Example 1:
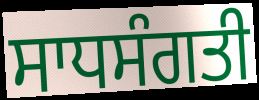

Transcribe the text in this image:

ਸਾਧਸੰਗਤੀ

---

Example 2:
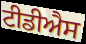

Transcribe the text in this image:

ਟੀਡੀਐਸ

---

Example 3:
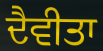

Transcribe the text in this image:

ਦੈਵੀਤਾ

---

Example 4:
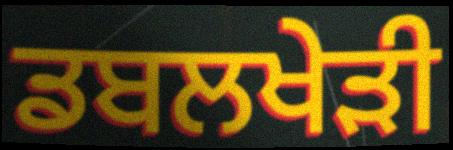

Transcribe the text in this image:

ਡਬਲਖੇੜੀ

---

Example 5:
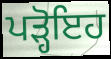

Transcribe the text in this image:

ਪੜ੍ਹੋਇਹ